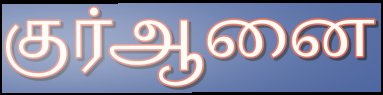
குர்ஆனை